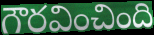
గౌరవించింది